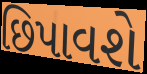
છિપાવશે